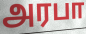
அரபா